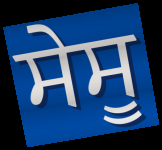
ਸੇਸੂ